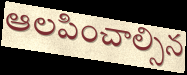
ఆలపించాల్సిన